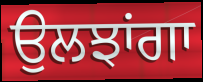
ਉਲਝਾਂਗਾ